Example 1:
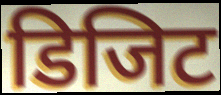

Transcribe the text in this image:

डिजिट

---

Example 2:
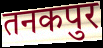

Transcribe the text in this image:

तनकपुर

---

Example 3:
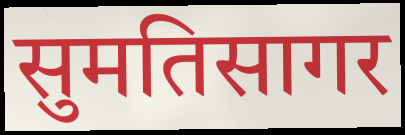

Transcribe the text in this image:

सुमतिसागर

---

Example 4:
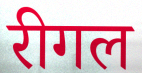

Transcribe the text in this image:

रीगल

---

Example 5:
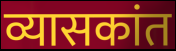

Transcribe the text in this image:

व्यासकांत